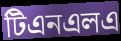
টিএনএলএ